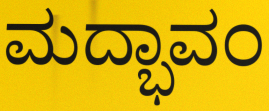
ಮದ್ಭಾವಂ